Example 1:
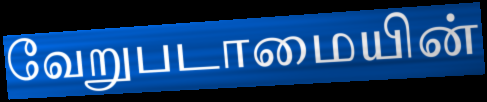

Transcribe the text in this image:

வேறுபடாமையின்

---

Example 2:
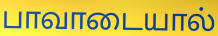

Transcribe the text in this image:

பாவாடையால்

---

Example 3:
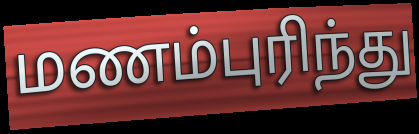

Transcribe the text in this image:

மணம்புரிந்து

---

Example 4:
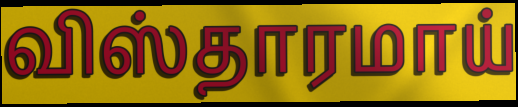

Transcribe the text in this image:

விஸ்தாரமாய்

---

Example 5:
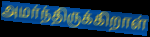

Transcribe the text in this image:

அமர்ந்திருக்கிறாள்